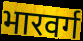
भारवर्ग